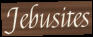
Jebusites